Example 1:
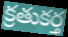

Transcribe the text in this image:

క్రతుకర్త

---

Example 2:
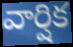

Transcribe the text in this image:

వార్షిక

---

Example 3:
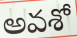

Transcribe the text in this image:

అవశో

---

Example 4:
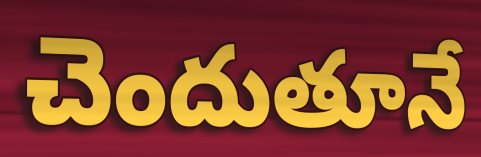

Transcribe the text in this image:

చెందుతూనే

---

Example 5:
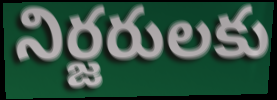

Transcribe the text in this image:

నిర్జరులకు